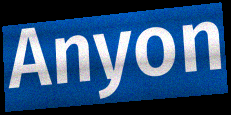
Anyon